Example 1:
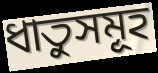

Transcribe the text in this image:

ধাতুসমূহ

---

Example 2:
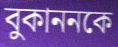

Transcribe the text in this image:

বুকাননকে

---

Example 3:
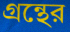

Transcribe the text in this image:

গ্রন্থের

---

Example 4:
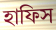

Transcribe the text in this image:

হাফিস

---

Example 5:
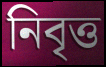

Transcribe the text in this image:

নিবৃত্ত